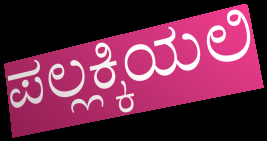
ಪಲ್ಲಕ್ಕಿಯಲಿ